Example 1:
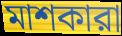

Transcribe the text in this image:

মাশকারা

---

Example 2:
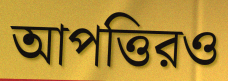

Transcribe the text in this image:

আপত্তিরও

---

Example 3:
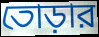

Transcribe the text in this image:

তোড়ার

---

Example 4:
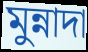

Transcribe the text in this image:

মুন্নাদা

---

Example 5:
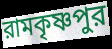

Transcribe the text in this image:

রামকৃষ্ণপুর